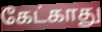
கேட்காது